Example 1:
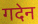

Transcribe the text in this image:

गदेन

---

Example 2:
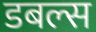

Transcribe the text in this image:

डबल्‍स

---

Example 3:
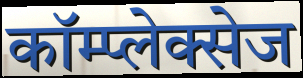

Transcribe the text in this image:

कॉम्प्लेक्सेज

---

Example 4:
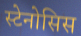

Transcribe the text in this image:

स्टेनोसिस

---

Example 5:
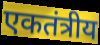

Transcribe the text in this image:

एकतंत्रीय